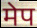
मेप